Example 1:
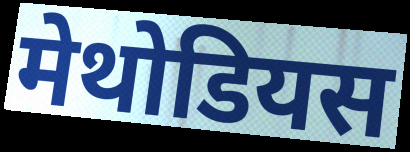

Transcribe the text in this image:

मेथोडियस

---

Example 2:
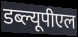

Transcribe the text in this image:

डब्ल्यूपीएल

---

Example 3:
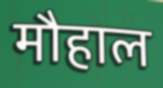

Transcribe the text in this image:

मौहाल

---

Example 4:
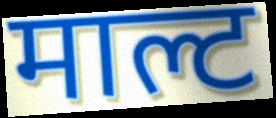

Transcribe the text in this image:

माल्ट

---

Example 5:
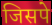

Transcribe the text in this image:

जिसपे